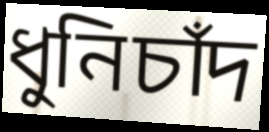
ধুনিচাঁদ